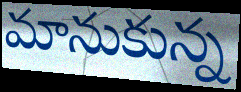
మానుకున్న